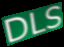
DLS